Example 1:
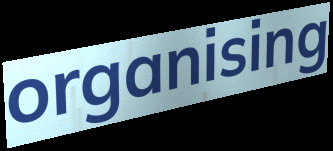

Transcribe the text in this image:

organising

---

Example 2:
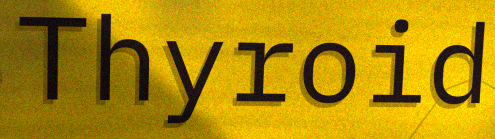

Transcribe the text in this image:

Thyroid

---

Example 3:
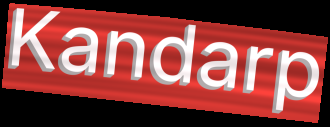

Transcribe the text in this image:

Kandarp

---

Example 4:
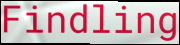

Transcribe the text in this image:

Findling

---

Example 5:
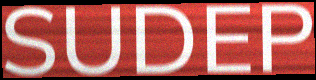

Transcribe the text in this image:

SUDEP